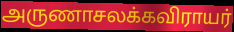
அருணாசலக்கவிராயர்